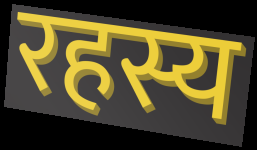
रहस्य